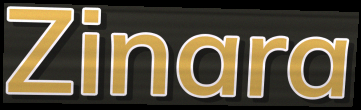
Zinara